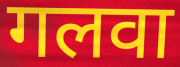
गलवा